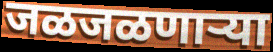
जळजळणाऱ्या